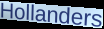
Hollanders